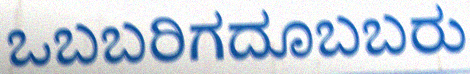
ಒಬಬರಿಗದೂಬಬರು